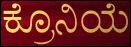
ಕ್ರೊನಿಯೆ